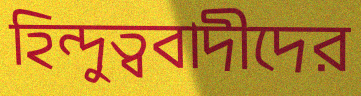
হিন্দুত্ববাদীদের